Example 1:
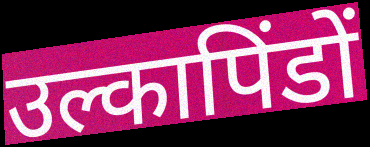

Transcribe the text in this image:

उल्कापिंडों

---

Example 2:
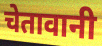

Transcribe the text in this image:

चेतावानी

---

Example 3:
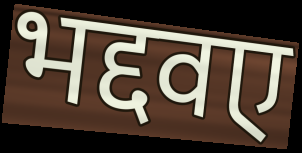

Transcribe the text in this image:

भद्दवए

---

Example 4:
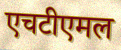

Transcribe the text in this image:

एचटीएमल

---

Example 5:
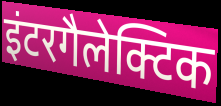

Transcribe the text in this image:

इंटरगैलेक्टिक